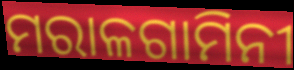
ମରାଳଗାମିନୀ